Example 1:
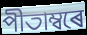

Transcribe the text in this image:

পীতাম্বৰে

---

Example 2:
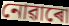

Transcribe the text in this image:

নোৱাৰো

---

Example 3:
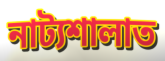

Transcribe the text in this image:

নাট্যশালাত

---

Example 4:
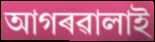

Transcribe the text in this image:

আগৰৱালাই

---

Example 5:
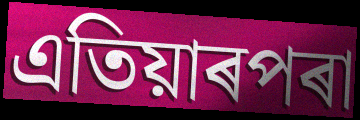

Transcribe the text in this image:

এতিয়াৰপৰা